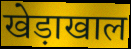
खेड़ाखाल